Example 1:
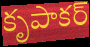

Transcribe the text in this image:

కృపాకర్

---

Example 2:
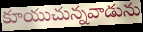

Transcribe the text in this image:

కూయుచున్నవాడును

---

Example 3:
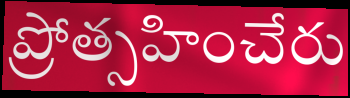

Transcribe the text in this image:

ప్రోత్సహించేరు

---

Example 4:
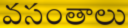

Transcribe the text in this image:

వసంతాలు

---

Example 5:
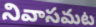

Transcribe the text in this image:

నివాసమట